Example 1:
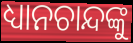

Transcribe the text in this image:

ଧ୍ୟାନଚାନ୍ଦଙ୍କୁ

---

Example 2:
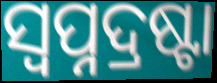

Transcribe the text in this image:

ସ୍ୱପ୍ନଦ୍ରଷ୍ଟା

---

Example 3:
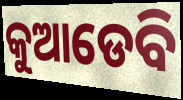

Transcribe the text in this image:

କୁଆଡେବି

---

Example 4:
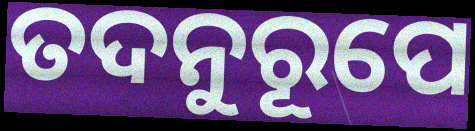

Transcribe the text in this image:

ତଦନୁରୂପେ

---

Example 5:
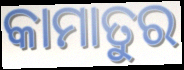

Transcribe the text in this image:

କାମାତୁର